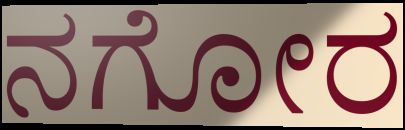
ನಗೋರ